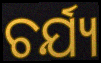
ଚର୍ଯ୍ୟ